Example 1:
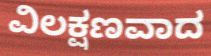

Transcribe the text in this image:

ವಿಲಕ್ಷಣವಾದ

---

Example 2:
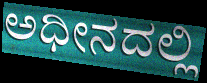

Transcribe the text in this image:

ಅಧೀನದಲ್ಲಿ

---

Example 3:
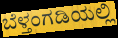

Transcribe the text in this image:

ಬೆಳ್ತಂಗಡಿಯಲ್ಲಿ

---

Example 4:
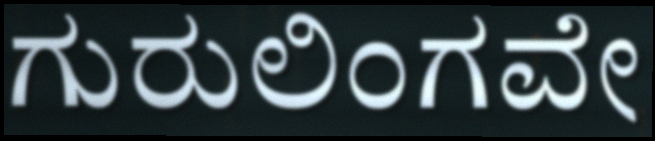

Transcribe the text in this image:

ಗುರುಲಿಂಗವೇ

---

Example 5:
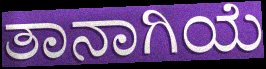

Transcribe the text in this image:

ತಾನಾಗಿಯೆ